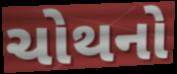
ચોથનો